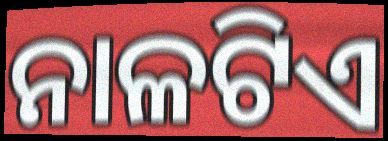
ନାଳଟିଏ